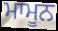
ਮਾਮੂਨ